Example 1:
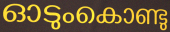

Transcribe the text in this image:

ഓടുംകൊണ്ടു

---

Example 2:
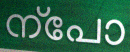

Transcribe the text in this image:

ന്പോ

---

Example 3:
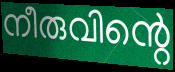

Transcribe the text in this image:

നീരുവിന്റെ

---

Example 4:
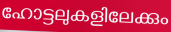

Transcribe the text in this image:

ഹോട്ടലുകളിലേക്കും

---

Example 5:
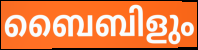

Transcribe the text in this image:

ബൈബിളും